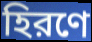
হিরণে